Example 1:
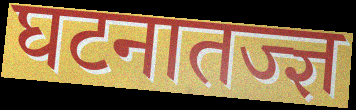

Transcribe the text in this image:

घटनातज्ज्ञ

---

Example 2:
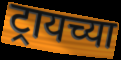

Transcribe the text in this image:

ट्रायच्या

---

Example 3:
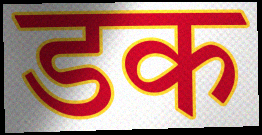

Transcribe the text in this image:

डक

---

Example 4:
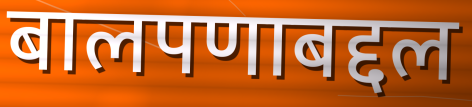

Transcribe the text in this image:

बालपणाबद्दल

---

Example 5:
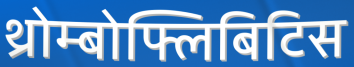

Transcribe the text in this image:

थ्रोम्बोफ्लिबिटिस